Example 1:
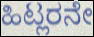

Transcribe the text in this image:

ಹಿಟ್ಲರನೇ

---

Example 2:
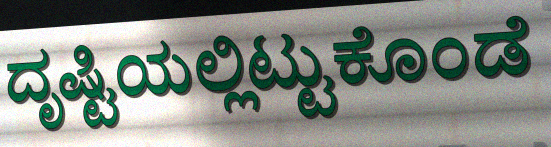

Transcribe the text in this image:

ದೃಷ್ಟಿಯಲ್ಲಿಟ್ಟುಕೊಂಡೆ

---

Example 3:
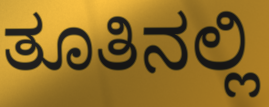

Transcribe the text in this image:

ತೂತಿನಲ್ಲಿ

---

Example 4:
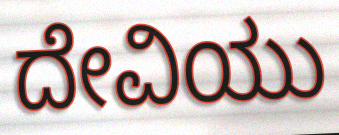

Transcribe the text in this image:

ದೇವಿಯು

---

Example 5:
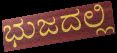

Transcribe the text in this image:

ಭುಜದಲ್ಲಿ